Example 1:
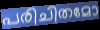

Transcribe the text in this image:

പരിചിതമോ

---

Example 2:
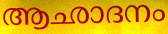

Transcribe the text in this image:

ആഛാദനം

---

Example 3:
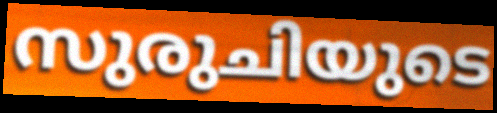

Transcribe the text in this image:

സുരുചിയുടെ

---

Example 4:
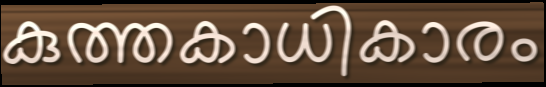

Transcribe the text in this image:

കുത്തകാധികാരം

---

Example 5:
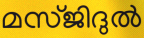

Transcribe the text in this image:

മസ്ജിദുൽ